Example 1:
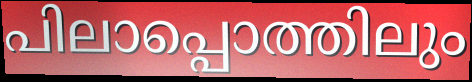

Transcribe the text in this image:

പിലാപ്പൊത്തിലും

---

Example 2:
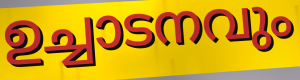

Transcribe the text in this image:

ഉച്ചാടനവും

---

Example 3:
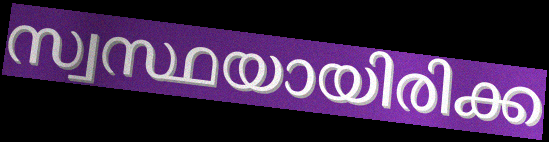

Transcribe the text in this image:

സ്വസ്ഥയായിരിക്ക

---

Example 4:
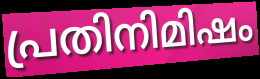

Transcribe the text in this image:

പ്രതിനിമിഷം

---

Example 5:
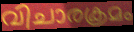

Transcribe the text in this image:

വിചാരക്രമം